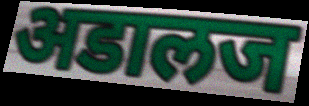
अडालज